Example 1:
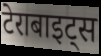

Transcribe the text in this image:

टेराबाइट्स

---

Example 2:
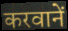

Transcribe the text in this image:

करवानें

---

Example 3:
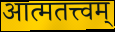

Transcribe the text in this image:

आत्मतत्त्वम्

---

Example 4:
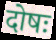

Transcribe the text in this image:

दोषः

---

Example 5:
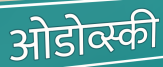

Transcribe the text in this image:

ओडोव्स्की